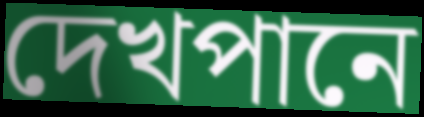
দেখপানে